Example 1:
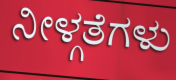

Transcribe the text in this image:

ನೀಳ್ಗತೆಗಳು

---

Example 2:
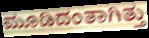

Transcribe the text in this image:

ಮೂಡಿದಂತಾಗಿತ್ತು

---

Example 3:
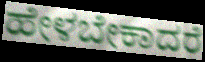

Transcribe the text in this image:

ಹೇಳಬೇಕಾದರೆ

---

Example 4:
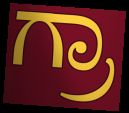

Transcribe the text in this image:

ಗ್ರಾ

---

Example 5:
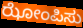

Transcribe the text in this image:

ಝೋಂಪಿಸು